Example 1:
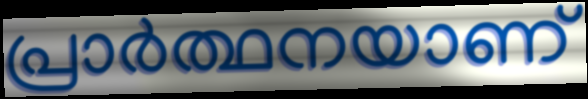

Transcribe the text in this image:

പ്രാർത്ഥനയാണ്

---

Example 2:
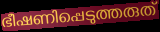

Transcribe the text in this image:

ഭീഷണിപ്പെടുത്തരുത്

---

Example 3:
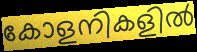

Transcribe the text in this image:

കോളനികളിൽ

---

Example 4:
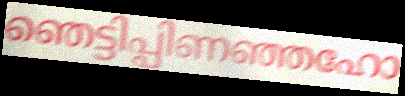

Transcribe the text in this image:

ഞെട്ടിപ്പിണഞ്ഞഹോ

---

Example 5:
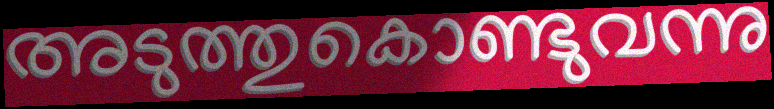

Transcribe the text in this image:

അടുത്തുകൊണ്ടുവന്നു